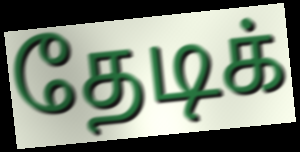
தேடிக்